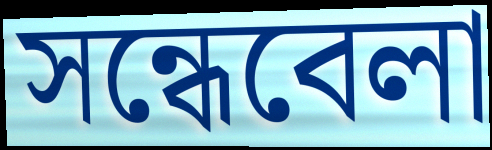
সন্ধেবেলা